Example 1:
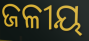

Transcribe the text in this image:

ଜଳୀୟ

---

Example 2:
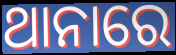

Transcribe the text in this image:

ଥାନାରେ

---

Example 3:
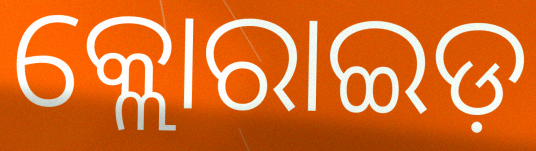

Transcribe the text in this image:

କ୍ଲୋରାଇଡ଼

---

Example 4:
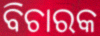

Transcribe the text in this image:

ବିଚାରକ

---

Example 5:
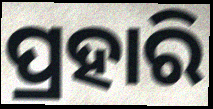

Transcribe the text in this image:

ପ୍ରହାରି